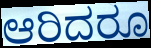
ಆರಿದರೂ